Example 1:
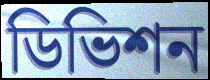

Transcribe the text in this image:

ডিভিশন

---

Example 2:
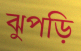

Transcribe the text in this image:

ঝুপড়ি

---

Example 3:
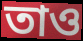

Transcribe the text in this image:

তাও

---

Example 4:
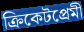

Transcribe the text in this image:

ক্রিকেটপ্রেমী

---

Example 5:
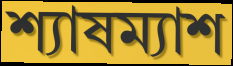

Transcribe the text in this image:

শ্যাষম্যাশ